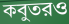
কবুতরও